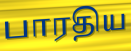
பாரதிய